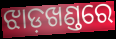
ଝାଡ଼ଖଣ୍ଡରେ